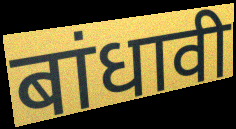
बांधावी